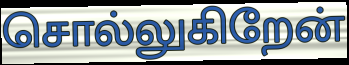
சொல்லுகிறேன்